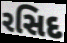
રસિદ